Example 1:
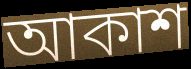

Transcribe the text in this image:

আকাশ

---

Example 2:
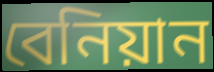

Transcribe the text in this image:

বেনিয়ান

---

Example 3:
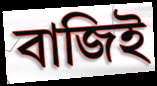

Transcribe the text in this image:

বাজিই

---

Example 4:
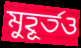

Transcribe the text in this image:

মুহূর্তও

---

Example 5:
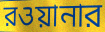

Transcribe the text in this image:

রওয়ানার